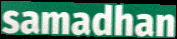
samadhan